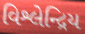
વિશ્લેન્દ્રિય